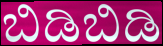
ಬಿಡಿಬಿಡಿ